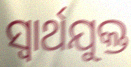
ସ୍ୱାର୍ଥଯୁକ୍ତ